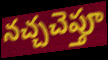
నచ్చచెప్తూ